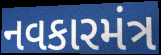
નવકારમંત્ર